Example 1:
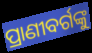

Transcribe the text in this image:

ପ୍ରାଣୀବର୍ଗଙ୍କୁ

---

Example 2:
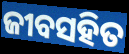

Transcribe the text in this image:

ଜୀବସହିତ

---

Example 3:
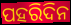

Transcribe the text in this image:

ପହରିଦିନ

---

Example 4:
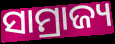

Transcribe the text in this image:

ସାମ୍ରାଜ୍ୟ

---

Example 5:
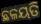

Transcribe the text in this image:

ଛଳୟତି